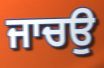
ਜਾਚਉ